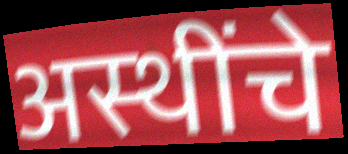
अस्थींचे